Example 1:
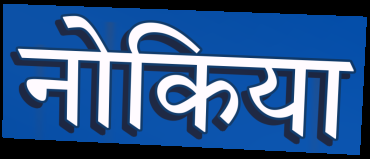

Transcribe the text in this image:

नोकिया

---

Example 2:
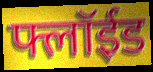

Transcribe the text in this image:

फ्लॉईड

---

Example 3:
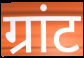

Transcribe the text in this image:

ग्रांट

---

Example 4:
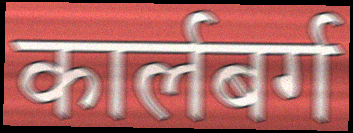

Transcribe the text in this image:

कार्लबर्ग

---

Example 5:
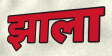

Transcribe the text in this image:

झाला